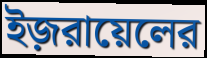
ইজ়রায়েলের